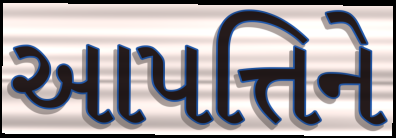
આપત્તિને